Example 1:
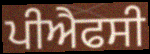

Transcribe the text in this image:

ਪੀਐਫਸੀ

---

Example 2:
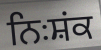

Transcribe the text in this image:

ਨਿਃਸ਼ਂਕ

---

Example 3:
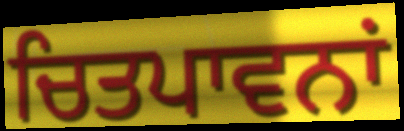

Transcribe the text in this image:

ਚਿਤਪਾਵਨਾਂ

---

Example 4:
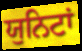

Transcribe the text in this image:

ਯੁਨਿਟਾਂ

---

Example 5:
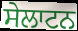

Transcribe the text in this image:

ਸੇਲਾਟਨ